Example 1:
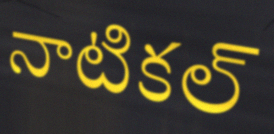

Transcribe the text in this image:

నాటికల్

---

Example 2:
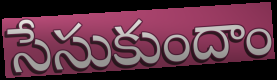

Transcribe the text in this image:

సేసుకుందాం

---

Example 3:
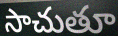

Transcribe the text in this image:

సాచుతూ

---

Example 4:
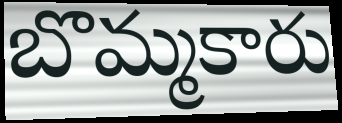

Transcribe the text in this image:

బొమ్మకారు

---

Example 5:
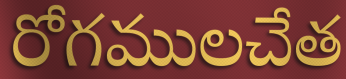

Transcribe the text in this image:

రోగములచేత